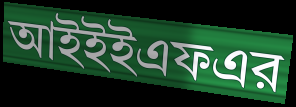
আইইইএফএর